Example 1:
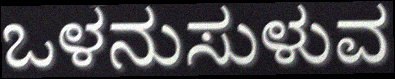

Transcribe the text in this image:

ಒಳನುಸುಳುವ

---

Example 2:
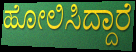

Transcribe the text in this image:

ಹೋಲಿಸಿದ್ದಾರೆ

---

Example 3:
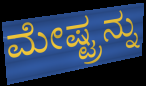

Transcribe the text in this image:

ಮೇಷ್ಟ್ರನ್ನು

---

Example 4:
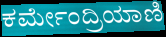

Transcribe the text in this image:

ಕರ್ಮೇಂದ್ರಿಯಾಣಿ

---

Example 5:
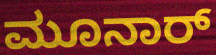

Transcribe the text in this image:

ಮೂನಾರ್